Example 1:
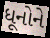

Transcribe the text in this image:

ધૂનોને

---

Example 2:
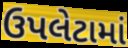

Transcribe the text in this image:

ઉપલેટામાં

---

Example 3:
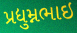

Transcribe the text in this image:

પ્રદ્યુમ્નભાઇ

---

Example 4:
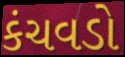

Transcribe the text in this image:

કંચવડો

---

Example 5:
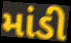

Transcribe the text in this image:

માંડી